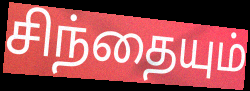
சிந்தையும்